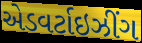
એડવર્ટાઇઝીંગ